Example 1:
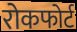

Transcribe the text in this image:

रोकफोर्ट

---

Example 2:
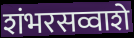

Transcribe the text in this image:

शंभरसव्वाशे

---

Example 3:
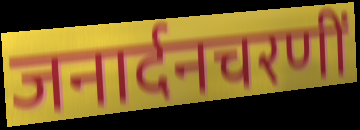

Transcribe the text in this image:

जनार्दनचरणीं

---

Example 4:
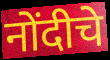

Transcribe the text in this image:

नोंदीचे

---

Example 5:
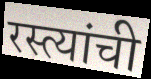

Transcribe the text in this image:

रस्त्यांची